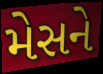
મેસને